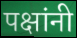
पक्षांनी